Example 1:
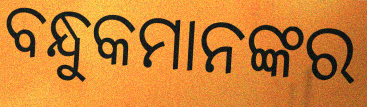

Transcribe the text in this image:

ବନ୍ଧୁକମାନଙ୍କର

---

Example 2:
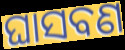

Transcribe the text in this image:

ଘାସବଣ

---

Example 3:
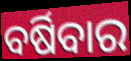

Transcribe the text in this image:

ବର୍ଷିବାର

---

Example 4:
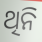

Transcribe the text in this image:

ଥିନି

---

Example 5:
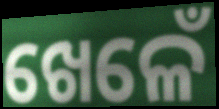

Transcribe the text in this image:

ଖେଳେଁ